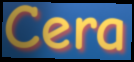
Cera